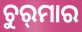
ଚୁର୍‍ମାର